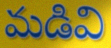
మడివి